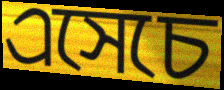
এসেচে